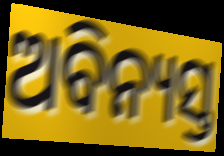
ଅବିନ୍ୟସ୍ତ